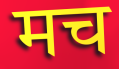
मच